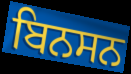
ਬਿਨਸਨ